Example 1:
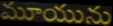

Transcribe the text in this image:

మూయును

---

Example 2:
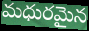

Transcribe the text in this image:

మధురమైన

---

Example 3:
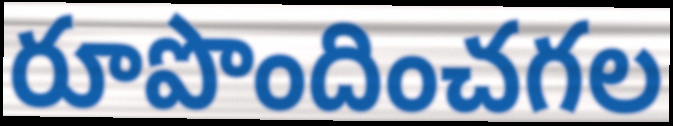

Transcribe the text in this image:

రూపొందించగల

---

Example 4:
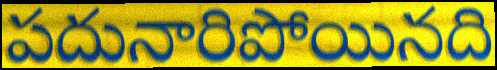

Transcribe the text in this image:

పదునారిపోయినది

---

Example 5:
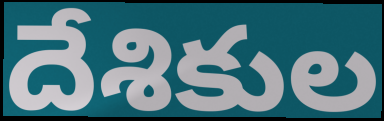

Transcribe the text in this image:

దేశికుల